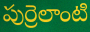
పుర్రెలాంటి